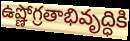
ఉష్ణోగ్రతాభివృద్ధికి